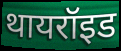
थायरॉइड